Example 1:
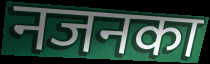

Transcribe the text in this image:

नजनका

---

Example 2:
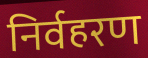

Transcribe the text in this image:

निर्वहरण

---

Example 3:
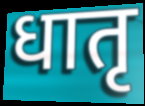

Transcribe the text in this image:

धातृ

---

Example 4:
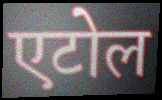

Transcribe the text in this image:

एटोल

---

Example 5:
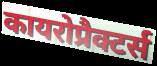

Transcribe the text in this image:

कायरोप्रैक्टर्स